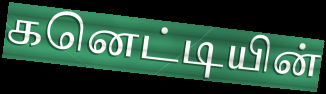
கனெட்டியின்